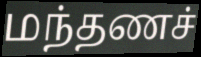
மந்தணச்